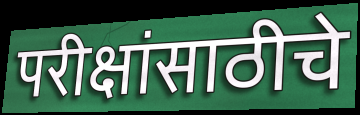
परीक्षांसाठीचे